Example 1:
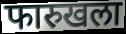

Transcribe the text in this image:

फारुखला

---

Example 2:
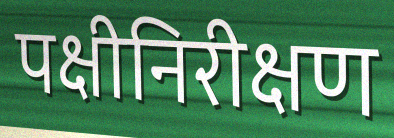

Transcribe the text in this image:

पक्षीनिरीक्षण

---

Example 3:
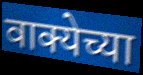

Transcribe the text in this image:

वाक्येच्या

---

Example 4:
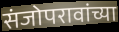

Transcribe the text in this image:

संजोपरावांच्या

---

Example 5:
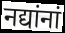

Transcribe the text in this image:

नद्यांनां